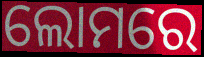
ଲୋମରେ